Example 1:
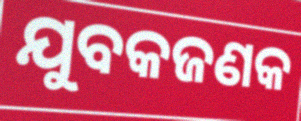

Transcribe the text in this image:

ଯୁବକଜଣକ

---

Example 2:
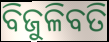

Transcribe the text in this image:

ବିଜୁଳିବତି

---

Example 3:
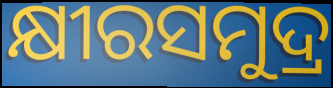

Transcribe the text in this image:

କ୍ଷୀରସମୁଦ୍ର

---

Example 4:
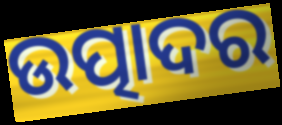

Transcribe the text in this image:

ଉତ୍ପାଦର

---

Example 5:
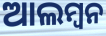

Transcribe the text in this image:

ଆଲମ୍ୱନ